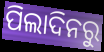
ପିଲାଦିନରୁ